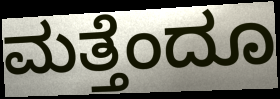
ಮತ್ತೆಂದೂ